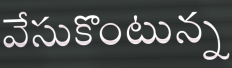
వేసుకొంటున్న